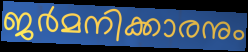
ജർമനിക്കാരനും